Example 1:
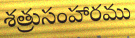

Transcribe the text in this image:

శత్రుసంహారము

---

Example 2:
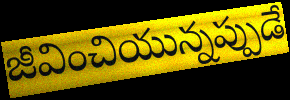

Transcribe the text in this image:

జీవించియున్నప్పుడే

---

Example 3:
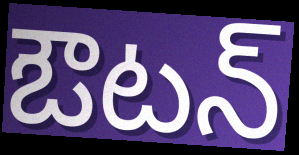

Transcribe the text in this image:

ఔటన్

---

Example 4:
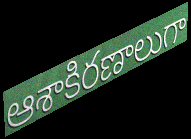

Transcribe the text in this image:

ఆశాకిరణాలుగా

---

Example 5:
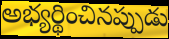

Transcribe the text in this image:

అభ్యర్థించినప్పుడు